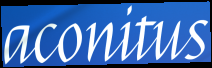
aconitus